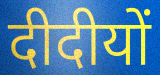
दीदीयों